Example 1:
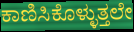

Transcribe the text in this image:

ಕಾಣಿಸಿಕೊಳ್ಳುತ್ತಲೇ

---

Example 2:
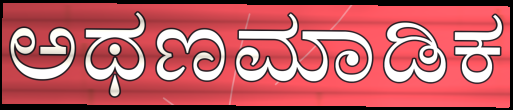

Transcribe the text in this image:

ಅಥಣಮಾಡಿಕ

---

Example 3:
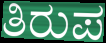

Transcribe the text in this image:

ತಿರುಪ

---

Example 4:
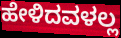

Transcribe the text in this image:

ಹೇಳಿದವಳಲ್ಲ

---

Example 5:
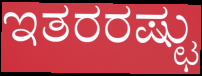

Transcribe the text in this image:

ಇತರರಷ್ಟು